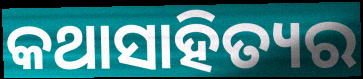
କଥାସାହିତ୍ୟର